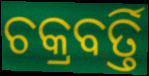
ଚକ୍ରବର୍ତ୍ତି